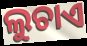
ଲୁଚାଏ